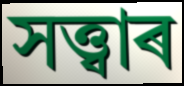
সত্ত্বাৰ